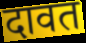
दावत